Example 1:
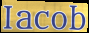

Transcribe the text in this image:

Iacob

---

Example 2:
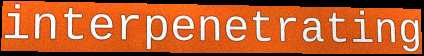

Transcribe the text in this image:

interpenetrating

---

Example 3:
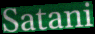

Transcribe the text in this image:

Satani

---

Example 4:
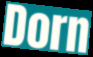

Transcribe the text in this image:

Dorn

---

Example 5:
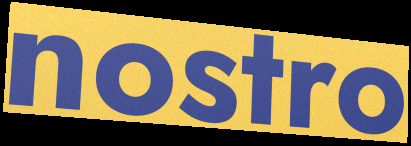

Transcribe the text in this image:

nostro